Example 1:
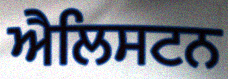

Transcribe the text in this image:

ਐਲਿਸਟਨ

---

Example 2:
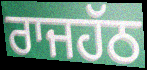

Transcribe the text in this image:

ਰਾਜਹੱਠ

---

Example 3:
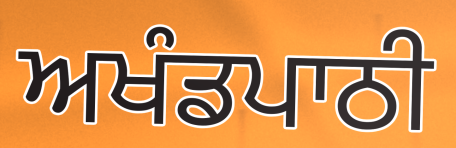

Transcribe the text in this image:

ਅਖੰਡਪਾਠੀ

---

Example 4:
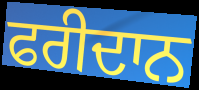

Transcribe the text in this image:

ਫਰੀਦਾਨ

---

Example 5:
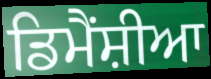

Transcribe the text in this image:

ਡਿਮੈਂਸ਼ੀਆ